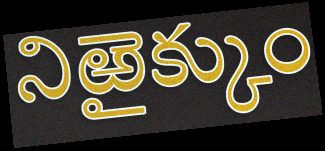
నిఱైక్కుం